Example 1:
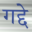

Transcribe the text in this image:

गद्दे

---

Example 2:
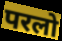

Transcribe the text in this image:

परलो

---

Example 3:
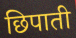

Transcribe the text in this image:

छिपाती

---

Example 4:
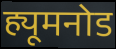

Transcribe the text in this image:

ह्यूमनोड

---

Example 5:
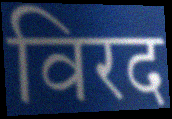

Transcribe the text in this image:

विरद